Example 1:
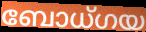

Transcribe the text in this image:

ബോധ്ഗയ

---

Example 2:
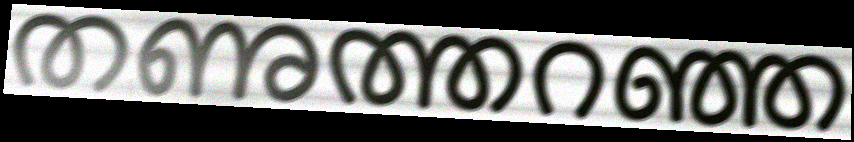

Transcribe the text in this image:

തണുത്തറഞ്ഞ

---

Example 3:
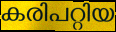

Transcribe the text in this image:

കരിപറ്റിയ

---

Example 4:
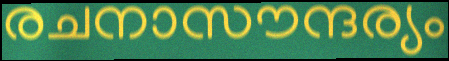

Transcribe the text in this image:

രചനാസൗന്ദര്യം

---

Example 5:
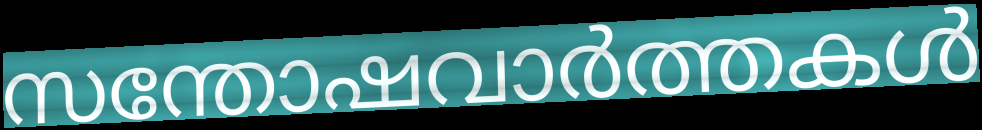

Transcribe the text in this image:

സന്തോഷവാർത്തകൾ